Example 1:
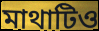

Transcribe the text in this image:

মাথাটিও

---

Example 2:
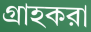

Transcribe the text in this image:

গ্রাহকরা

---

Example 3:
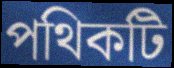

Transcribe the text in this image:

পথিকটি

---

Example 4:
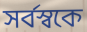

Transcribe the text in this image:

সর্বস্বকে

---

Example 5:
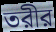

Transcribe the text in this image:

তরীর